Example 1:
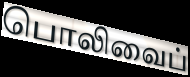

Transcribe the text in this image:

பொலிவைப்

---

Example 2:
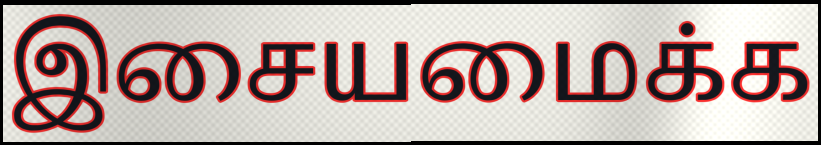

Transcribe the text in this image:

இசையமைக்க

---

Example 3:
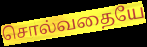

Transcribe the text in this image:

சொல்வதையே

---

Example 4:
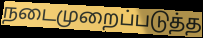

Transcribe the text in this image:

நடைமுறைப்படுத்த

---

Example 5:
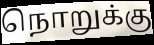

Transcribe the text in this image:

நொறுக்கு